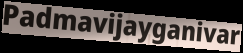
Padmavijayganivar